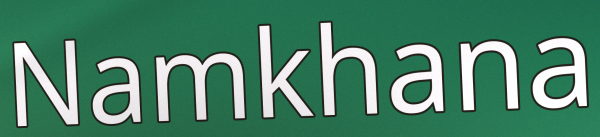
Namkhana